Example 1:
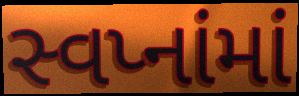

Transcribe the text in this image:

સ્વપ્નાંમાં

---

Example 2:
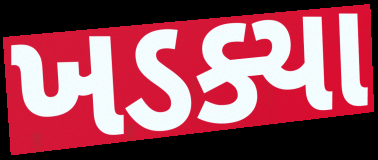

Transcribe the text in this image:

ખડક્યા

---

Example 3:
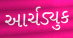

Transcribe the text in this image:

આર્ચડ્યુક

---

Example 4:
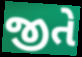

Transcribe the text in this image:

જીતે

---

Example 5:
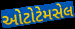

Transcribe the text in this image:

ઓટોટેમસેલ